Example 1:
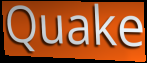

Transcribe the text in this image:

Quake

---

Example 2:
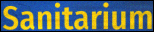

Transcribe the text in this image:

Sanitarium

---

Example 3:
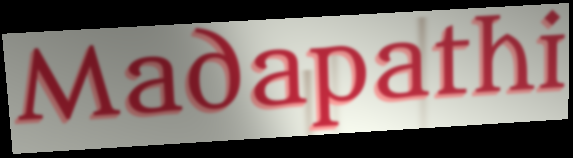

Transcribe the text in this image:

Madapathi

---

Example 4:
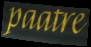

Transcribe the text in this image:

paatre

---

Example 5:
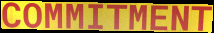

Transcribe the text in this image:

COMMITMENT